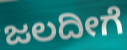
ಜಲದೀಗೆ